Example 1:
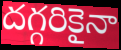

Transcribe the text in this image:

దగ్గరికైనా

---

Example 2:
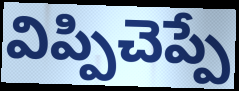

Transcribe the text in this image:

విప్పిచెప్పే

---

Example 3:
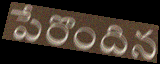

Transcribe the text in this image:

పేరొందిన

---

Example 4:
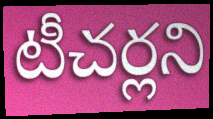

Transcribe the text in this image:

టీచర్లని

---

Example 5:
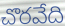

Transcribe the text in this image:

చొరవేది